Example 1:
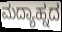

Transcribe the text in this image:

ಮದ್ಯಾಹ್ನದ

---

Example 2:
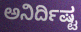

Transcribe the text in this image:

ಅನಿರ್ದಿಷ್ಟ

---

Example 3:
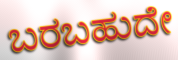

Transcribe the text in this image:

ಬರಬಹುದೇ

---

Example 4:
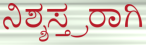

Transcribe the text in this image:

ನಿಶ್ಶಸ್ತ್ರರಾಗಿ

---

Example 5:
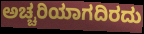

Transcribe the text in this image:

ಅಚ್ಚರಿಯಾಗದಿರದು